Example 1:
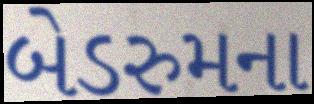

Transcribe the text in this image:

બેડરુમના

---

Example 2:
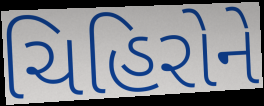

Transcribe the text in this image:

ચિહિરોને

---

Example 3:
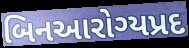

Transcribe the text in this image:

બિનઆરોગ્યપ્રદ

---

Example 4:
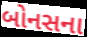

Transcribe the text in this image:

બોનસના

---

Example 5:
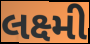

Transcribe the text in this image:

લક્ષ્મી